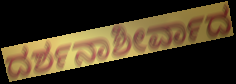
ದರ್ಶನಾಶೀರ್ವಾದ